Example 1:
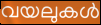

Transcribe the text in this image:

വയലുകൾ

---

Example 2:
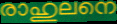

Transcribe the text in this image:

രാഹുലനെ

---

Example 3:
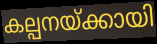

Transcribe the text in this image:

കല്പനയ്ക്കായി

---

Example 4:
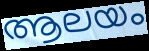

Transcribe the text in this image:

ആലയം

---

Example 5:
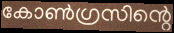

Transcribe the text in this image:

കോൺഗ്രസിന്റെ